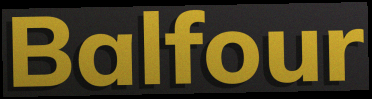
Balfour